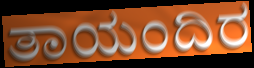
ತಾಯಂದಿರ